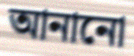
আনানো